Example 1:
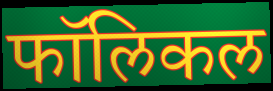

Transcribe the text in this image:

फॉलिकल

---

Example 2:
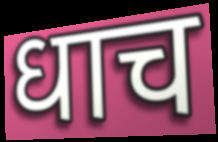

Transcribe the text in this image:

धाच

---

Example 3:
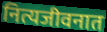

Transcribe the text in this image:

नित्यजीवनात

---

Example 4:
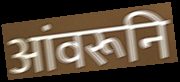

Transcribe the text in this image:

आंवरूनि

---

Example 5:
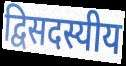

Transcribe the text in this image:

द्विसदस्यीय